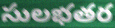
సులభతర